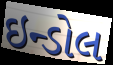
ઇન્ડોલ